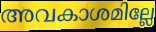
അവകാശമില്ലേ